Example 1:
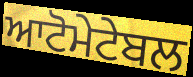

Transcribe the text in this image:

ਆਟੋਮੇਟੇਬਲ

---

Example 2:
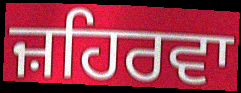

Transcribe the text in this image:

ਜ਼ਹਿਰਵਾ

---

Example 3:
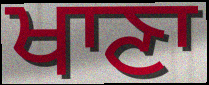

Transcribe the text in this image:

ਖਾਣਾ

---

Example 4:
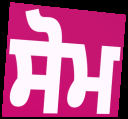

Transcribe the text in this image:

ਸੋਮ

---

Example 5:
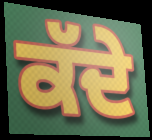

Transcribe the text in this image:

ਕੱਦੇ